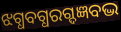
ଝଗ୍ଧବଗ୍ଧରଗ୍ଦଜ୍ଞବଦ୍ଭ